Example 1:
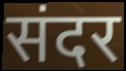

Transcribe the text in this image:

संदर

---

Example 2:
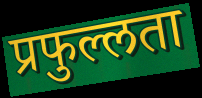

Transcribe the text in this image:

प्रफुल्लता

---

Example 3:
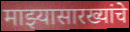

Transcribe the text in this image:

माझ्यासारख्यांचे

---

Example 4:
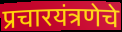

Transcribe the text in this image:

प्रचारयंत्रणेचे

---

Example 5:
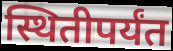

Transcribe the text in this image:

स्थितीपर्यंत